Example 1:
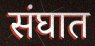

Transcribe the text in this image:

संघात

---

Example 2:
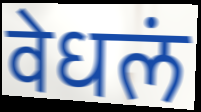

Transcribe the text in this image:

वेधलं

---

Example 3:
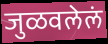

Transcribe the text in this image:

जुळवलेलं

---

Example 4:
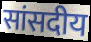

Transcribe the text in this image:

सांसदीय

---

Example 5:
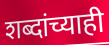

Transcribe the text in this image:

शब्दांच्याही